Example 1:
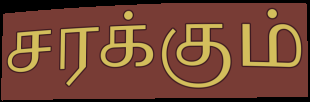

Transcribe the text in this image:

சரக்கும்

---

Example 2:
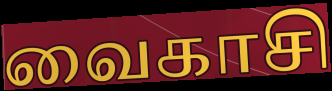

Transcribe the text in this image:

வைகாசி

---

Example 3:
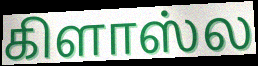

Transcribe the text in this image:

கிளாஸ்ல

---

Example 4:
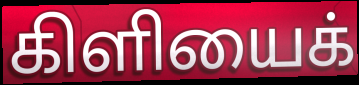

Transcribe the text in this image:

கிளியைக்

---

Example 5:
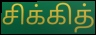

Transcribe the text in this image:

சிக்கித்